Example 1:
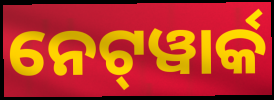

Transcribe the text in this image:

ନେଟ୍‌ୱାର୍କ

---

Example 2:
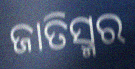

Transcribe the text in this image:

ଜାତିସ୍ମର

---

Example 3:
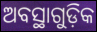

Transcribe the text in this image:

ଅବସ୍ଥାଗୁଡ଼ିକ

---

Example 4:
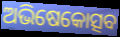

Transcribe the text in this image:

ଅଭିଷେକୋତ୍ସବ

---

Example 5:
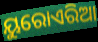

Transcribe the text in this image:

ୟୁରୋଏରିଆ